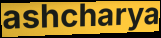
ashcharya